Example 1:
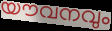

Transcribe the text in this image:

യൗവനവും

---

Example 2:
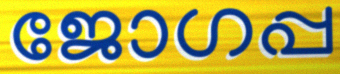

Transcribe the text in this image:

ജോഗപ്പ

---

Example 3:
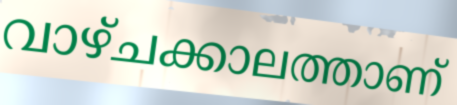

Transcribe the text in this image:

വാഴ്ചക്കാലത്താണ്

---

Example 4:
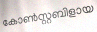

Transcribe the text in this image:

കോൺസ്റ്റബിളായ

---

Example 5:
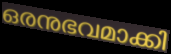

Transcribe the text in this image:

ഒരനുഭവമാക്കി